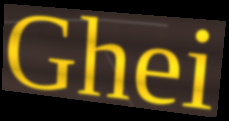
Ghei